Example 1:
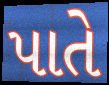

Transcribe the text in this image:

પાતે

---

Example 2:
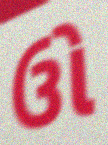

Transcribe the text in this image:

ઉો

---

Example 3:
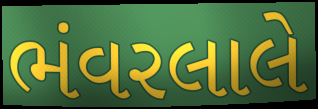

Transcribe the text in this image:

ભંવરલાલે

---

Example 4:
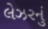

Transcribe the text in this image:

લેઝરનું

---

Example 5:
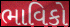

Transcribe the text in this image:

ભાવિકો